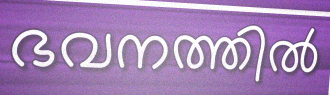
ഭവനത്തിൽ